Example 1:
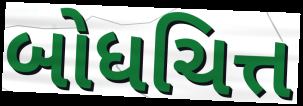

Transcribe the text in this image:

બોધચિત્ત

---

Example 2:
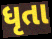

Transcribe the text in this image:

ધૃતા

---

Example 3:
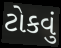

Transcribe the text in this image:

ટોકવું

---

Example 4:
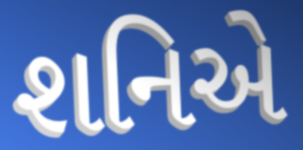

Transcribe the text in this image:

શનિએ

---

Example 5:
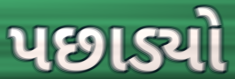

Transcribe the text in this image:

પછાડ્યો